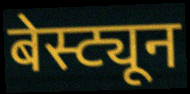
बेस्ट्यून